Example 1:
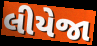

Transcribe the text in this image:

લીયેજા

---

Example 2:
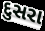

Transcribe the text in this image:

દુસરા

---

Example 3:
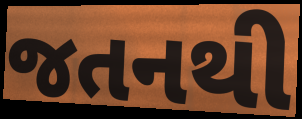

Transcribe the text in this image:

જતનથી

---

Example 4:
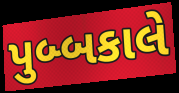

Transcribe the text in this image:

પુબ્બકાલે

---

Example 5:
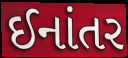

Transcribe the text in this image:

ઈનાંતર